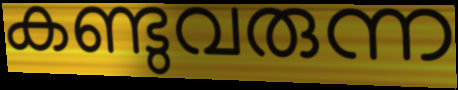
കണ്ടുവരുന്ന